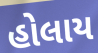
હોલાય